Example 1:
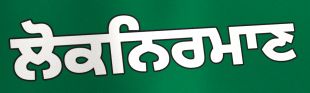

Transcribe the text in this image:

ਲੋਕਨਿਰਮਾਣ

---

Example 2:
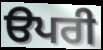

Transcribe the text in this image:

ੳਪਰੀ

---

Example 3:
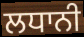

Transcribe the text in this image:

ਲਧਾਨੀ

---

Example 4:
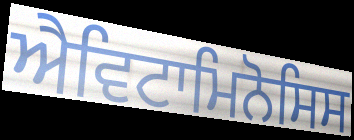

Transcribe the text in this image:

ਐਵਿਟਾਮਿਨੋਸਿਸ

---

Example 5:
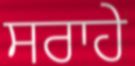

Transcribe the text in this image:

ਸਰਾਹੇ